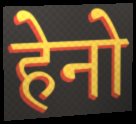
हेनो